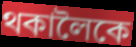
থকালৈকে